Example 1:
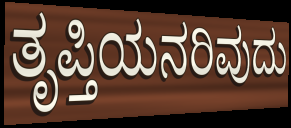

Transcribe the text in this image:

ತೃಪ್ತಿಯನರಿವುದು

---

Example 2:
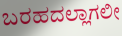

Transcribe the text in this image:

ಬರಹದಲ್ಲಾಗಲೀ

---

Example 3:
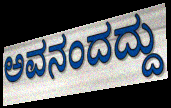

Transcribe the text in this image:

ಅವನಂದದ್ದು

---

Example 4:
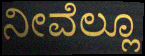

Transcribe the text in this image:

ನೀವೆಲ್ಲೂ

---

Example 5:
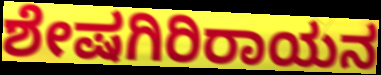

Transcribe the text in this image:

ಶೇಷಗಿರಿರಾಯನ